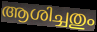
ആശിച്ചതും